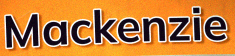
Mackenzie